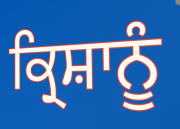
ਕ੍ਰਿਸ਼ਾਨੂੰ